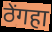
ठेंगहा